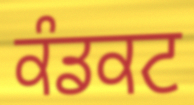
ਕੰਡਕਟ